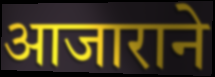
आजाराने